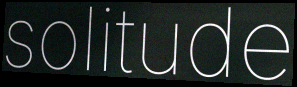
solitude